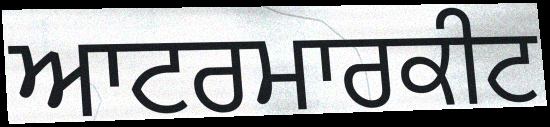
ਆਟਰਮਾਰਕੀਟ